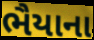
ભૈયાના